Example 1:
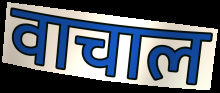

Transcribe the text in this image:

वाचाल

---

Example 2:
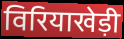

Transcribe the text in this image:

विरियाखेड़ी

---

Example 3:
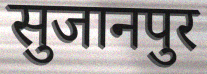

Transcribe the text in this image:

सुजानपुर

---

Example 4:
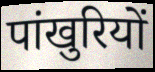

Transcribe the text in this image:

पांखुरियों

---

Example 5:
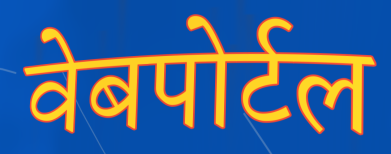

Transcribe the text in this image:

वेबपोर्टल